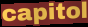
capitol